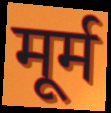
मूर्म